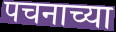
पचनाच्या